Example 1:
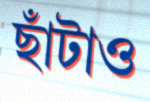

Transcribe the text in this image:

ছাঁটাও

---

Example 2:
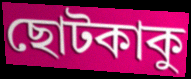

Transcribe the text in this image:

ছোটকাকু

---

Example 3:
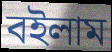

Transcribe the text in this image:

বইলাম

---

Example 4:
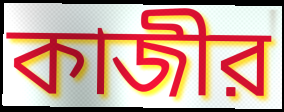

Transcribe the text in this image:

কাজীর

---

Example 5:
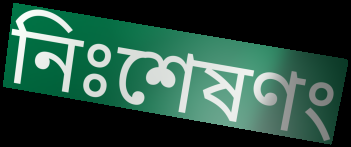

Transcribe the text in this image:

নিঃশেষণং